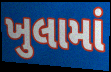
ખુલામાં